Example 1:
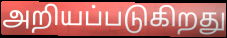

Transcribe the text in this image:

அறியப்படுகிறது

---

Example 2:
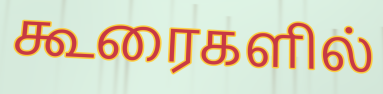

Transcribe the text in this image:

கூரைகளில்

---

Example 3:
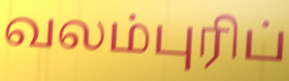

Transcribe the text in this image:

வலம்புரிப்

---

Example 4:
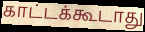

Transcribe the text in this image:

காட்டக்கூடாது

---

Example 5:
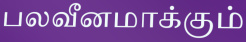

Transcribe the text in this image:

பலவீனமாக்கும்